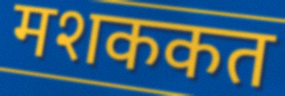
मशककत